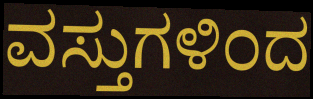
ವಸ್ತುಗಳಿಂದ